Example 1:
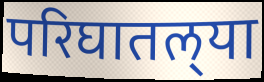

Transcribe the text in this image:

परिघातल्या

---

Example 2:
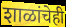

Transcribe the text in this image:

शाळांचेही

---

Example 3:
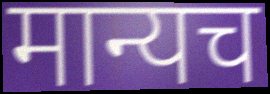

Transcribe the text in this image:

मान्यच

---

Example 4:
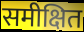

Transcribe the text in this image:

समीक्षित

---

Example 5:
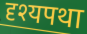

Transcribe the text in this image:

दृश्यपथा